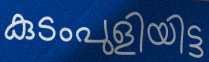
കുടംപുളിയിട്ട